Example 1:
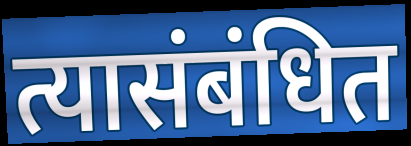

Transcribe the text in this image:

त्यासंबंधित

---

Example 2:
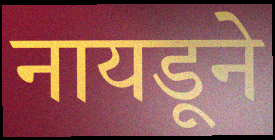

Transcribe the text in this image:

नायडूने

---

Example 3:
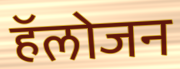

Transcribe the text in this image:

हॅलोजन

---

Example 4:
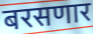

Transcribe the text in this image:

बरसणार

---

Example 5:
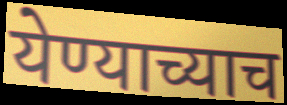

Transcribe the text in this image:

येण्याच्याच